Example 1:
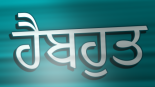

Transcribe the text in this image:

ਹੈਬਹੁਤ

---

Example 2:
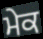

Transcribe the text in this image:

ਮੇਕ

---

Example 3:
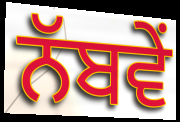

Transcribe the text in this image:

ਨੱਬਵੇਂ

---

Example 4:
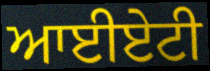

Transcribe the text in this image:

ਆਈਏਟੀ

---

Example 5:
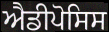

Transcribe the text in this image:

ਐਡੀਪੋਸਿਸ